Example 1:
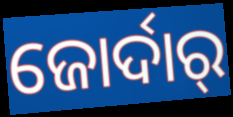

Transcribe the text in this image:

ଜୋର୍ଦାର୍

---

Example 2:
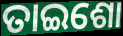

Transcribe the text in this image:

ତାଇଶୋ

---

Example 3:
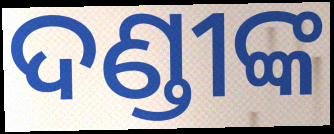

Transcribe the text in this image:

ଦଣ୍ଡୀଙ୍କ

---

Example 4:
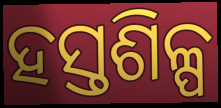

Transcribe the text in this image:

ହସ୍ତଶିଳ୍ପ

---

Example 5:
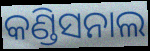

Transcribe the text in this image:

କଣ୍ଡିସନାଲ